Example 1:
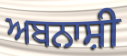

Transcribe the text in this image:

ਅਬਨਾਸ਼ੀ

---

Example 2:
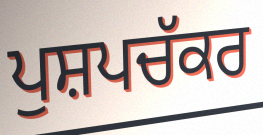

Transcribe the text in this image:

ਪੁਸ਼ਪਚੱਕਰ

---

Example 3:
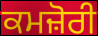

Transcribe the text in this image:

ਕਮਜ਼ੋਰੀ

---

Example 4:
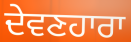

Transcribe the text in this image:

ਦੇਵਣਹਾਰਾ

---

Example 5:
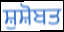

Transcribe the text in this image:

ਸ਼ੁਸ਼ੋਬਤ